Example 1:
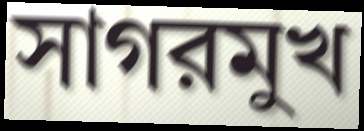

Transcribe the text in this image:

সাগরমুখ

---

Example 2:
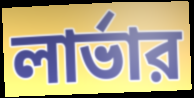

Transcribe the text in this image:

লার্ভার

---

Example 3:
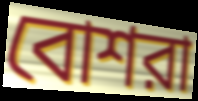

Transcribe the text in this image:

বোশরা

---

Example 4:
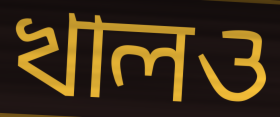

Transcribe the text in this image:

খালও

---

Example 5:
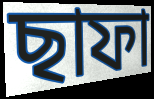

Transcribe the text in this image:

ছাফা